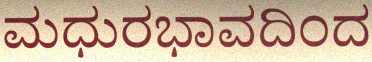
ಮಧುರಭಾವದಿಂದ